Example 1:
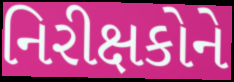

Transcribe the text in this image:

નિરીક્ષકોને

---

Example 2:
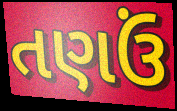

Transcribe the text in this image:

તણઉં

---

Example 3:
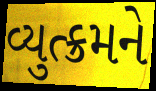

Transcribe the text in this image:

વ્યુત્ક્રમને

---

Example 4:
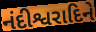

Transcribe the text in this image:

નંદીશ્વરાદિને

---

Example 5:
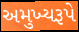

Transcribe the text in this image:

અમુખ્યરૂપે